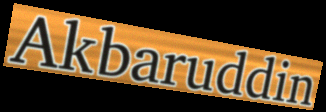
Akbaruddin